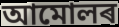
আমোলৰ